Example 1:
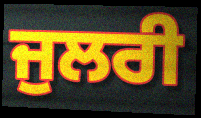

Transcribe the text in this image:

ਜੁਲਰੀ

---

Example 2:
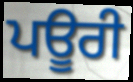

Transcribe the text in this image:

ਪਊਰੀ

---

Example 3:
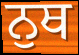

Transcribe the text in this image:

ਨੁਥ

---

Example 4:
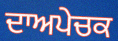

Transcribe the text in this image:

ਦਾਅਪੇਚਕ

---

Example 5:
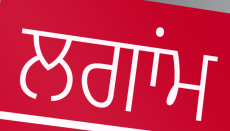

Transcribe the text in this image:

ਲਗਾਂਮ